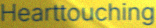
Hearttouching